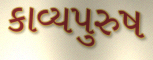
કાવ્યપુરુષ